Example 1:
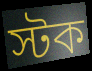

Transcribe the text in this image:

স্টক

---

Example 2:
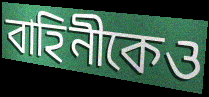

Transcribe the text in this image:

বাহিনীকেও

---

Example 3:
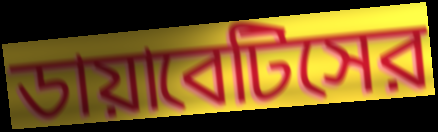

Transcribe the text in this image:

ডায়াবেটিসের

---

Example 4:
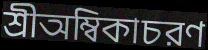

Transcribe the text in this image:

শ্রীঅম্বিকাচরণ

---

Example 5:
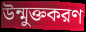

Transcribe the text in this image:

উন্মুক্তকরণ